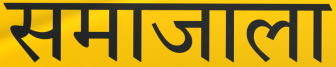
समाजाला